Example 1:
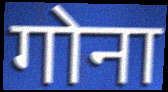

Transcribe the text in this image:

गोना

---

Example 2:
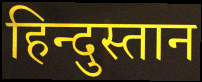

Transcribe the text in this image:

हिन्दुस्तान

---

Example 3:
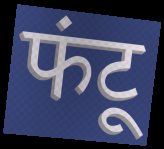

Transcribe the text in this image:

फंटू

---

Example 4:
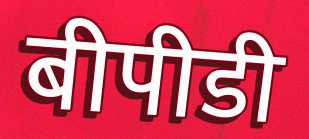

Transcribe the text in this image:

बीपीडी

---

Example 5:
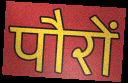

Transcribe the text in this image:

पौरों